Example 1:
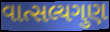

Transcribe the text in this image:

વાત્સલ્યગુણ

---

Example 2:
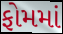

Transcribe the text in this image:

ફોમમાં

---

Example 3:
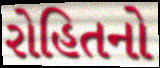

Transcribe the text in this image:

રોહિતનો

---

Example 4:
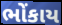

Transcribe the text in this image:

ભોંકાય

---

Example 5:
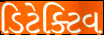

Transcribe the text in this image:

ડિટેક્ટિવ